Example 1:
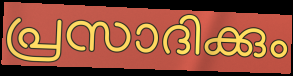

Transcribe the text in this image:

പ്രസാദിക്കും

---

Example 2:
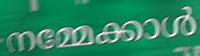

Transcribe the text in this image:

നമ്മേക്കാൾ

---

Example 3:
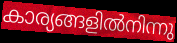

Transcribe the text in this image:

കാര്യങ്ങളിൽനിന്നു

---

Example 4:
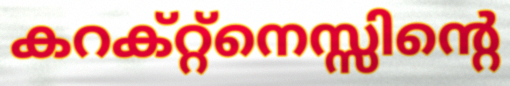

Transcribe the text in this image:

കറക്റ്റ്നെസ്സിന്റെ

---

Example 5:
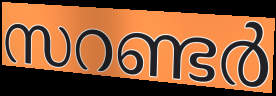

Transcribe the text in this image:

സറണ്ടർ